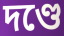
দণ্ডে